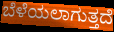
ಬೆಳೆಯಲಾಗುತ್ತದೆ